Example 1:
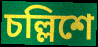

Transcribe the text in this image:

চল্লিশে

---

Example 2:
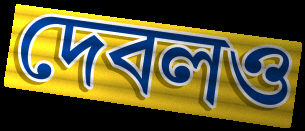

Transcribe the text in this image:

দেবলও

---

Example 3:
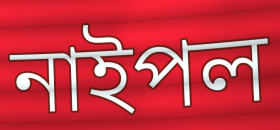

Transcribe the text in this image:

নাইপল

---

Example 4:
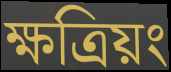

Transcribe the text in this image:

ক্ষত্রিয়ং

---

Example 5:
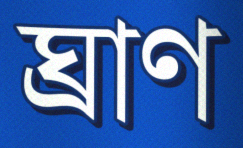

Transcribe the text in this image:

ঘ্রাণ